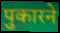
पुकारने